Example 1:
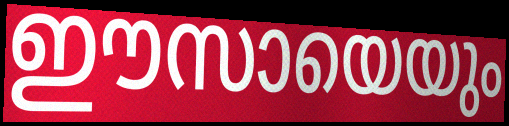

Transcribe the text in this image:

ഈസായെയും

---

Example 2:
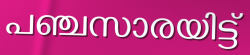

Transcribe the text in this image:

പഞ്ചസാരയിട്ട്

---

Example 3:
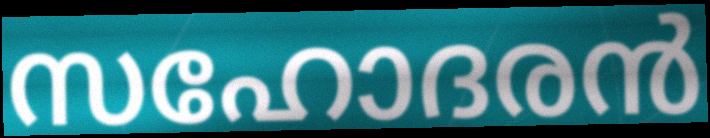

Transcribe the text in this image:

സഹോദരൻ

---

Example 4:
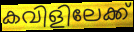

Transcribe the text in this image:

കവിളിലേക്ക്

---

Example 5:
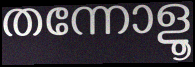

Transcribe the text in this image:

തന്നോളൂ